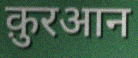
क़ुरआन